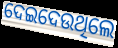
ଦେଇଦେଉଥିଲେ